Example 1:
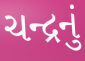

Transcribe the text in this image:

ચન્દ્રનું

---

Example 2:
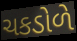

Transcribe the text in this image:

ચકડોળે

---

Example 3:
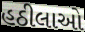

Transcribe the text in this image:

હઠીલાઓ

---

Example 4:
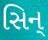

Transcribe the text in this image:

સિન્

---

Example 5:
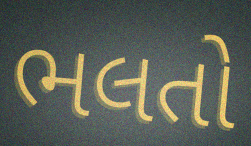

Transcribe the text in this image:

ભલતો